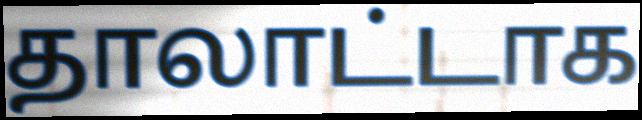
தாலாட்டாக